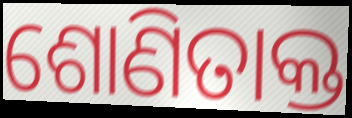
ଶୋଣିତାକ୍ତ